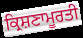
ਕ੍ਰਿਸ਼ਣਾਮੂਰਤੀ